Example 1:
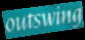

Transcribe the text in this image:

outswing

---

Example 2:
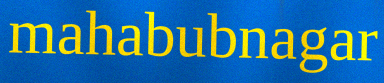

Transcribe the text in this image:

mahabubnagar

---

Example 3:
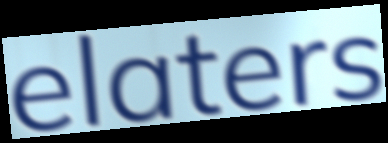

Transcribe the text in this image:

elaters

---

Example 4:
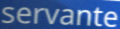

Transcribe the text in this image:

servante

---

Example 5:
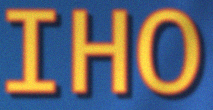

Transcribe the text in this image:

IHO